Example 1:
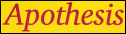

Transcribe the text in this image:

Apothesis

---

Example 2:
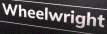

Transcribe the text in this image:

Wheelwright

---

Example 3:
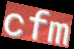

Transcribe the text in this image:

cfm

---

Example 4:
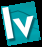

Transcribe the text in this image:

lv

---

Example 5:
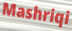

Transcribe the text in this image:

Mashriqi